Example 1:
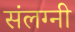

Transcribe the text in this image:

संलग्नी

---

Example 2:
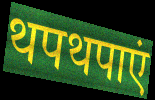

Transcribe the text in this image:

थपथपाएं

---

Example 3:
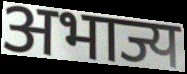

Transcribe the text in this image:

अभाज्य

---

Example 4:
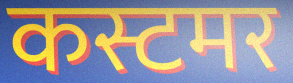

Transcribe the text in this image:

कस्‍टमर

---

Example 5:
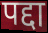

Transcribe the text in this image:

पद्दा